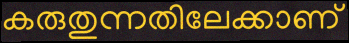
കരുതുന്നതിലേക്കാണ്